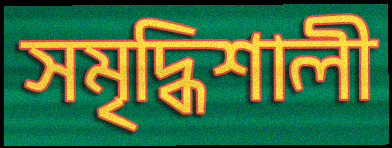
সমৃদ্ধিশালী